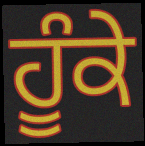
ਹੂੰਕੇ